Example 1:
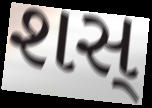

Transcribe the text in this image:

શસ્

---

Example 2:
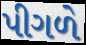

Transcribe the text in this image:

પીગળે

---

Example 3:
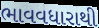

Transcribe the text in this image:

ભાવવધારાથી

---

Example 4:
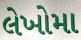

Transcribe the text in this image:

લેખોમા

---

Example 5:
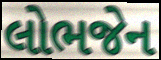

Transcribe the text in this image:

લોભજેન